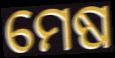
ମେଷ